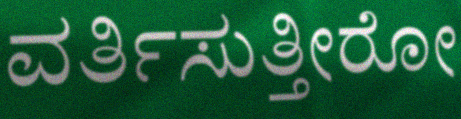
ವರ್ತಿಸುತ್ತೀರೋ